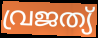
വ്രജത്യ്